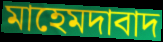
মাহেমদাবাদ